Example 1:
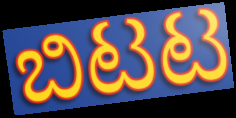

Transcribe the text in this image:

ಬಿಟಟ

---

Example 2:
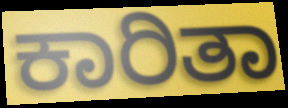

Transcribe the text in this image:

ಕಾರಿತಾ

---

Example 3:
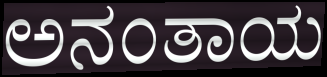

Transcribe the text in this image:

ಅನಂತಾಯ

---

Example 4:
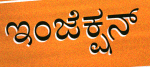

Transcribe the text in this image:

ಇಂಜೆಕ್ಷನ್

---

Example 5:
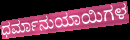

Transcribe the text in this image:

ಧರ್ಮಾನುಯಾಯಿಗಳ